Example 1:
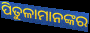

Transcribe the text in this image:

ପିତୁଳାମାନଙ୍କର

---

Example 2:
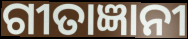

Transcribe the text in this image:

ଗୀତାଜ୍ଞାନୀ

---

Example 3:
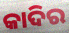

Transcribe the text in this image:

କାଦିର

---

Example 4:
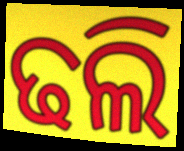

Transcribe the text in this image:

ଢଲି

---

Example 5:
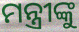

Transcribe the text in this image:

ମନ୍ତ୍ରୀଙ୍କୁ